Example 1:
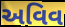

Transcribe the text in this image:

અવિવ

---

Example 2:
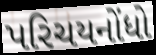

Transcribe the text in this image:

પરિચયનોંધો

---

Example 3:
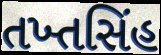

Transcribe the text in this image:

તખ્તસિંહ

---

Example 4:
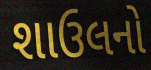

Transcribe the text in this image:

શાઉલનો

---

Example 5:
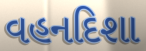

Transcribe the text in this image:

વહનદિશા